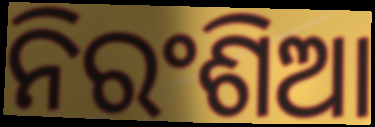
ନିରଂଶିଆ